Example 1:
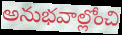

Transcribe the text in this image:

అనుభవాల్లోంచి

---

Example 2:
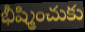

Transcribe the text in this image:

భీష్మించుకు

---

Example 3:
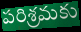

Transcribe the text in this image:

పరిశ్రమకు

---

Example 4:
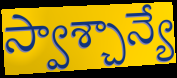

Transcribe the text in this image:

స్వాశ్చాన్యే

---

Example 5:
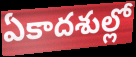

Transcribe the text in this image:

ఏకాదశుల్లో